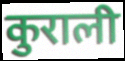
कुराली